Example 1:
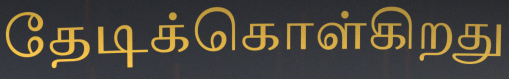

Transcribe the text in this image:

தேடிக்கொள்கிறது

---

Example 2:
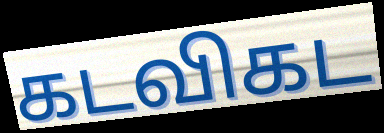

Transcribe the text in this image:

கடவிகட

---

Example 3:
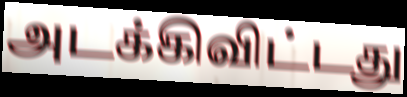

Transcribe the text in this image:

அடக்கிவிட்டது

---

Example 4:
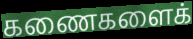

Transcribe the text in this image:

கணைகளைக்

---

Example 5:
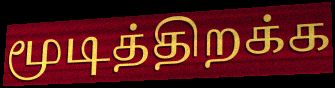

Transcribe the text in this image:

மூடித்திறக்க